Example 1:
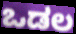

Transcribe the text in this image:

ಒಡಲ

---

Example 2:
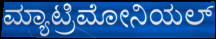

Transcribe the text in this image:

ಮ್ಯಾಟ್ರಿಮೋನಿಯಲ್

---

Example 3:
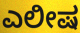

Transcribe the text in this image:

ಎಲೀಷ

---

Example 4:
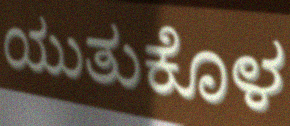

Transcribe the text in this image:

ಯುತುಕೊಳ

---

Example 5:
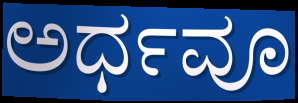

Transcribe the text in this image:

ಅರ್ಧವೂ